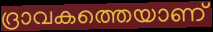
ദ്രാവകത്തെയാണ്